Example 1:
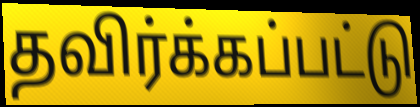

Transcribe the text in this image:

தவிர்க்கப்பட்டு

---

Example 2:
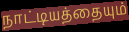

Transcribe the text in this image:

நாட்டியத்தையும்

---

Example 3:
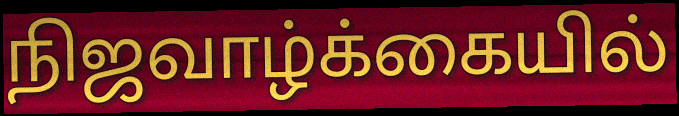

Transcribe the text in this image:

நிஜவாழ்க்கையில்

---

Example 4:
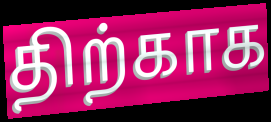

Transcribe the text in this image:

திற்காக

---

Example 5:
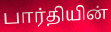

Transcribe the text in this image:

பார்தியின்